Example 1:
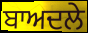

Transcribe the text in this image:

ਬਾਅਦਲੇ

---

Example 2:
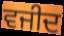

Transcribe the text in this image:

ਵਜੀਦ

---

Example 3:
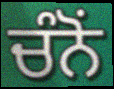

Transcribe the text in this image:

ਚੰਨੋਂ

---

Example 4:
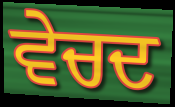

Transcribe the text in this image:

ਵੇਚਦ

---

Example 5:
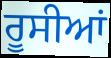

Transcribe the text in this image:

ਰੂਸੀਆਂ